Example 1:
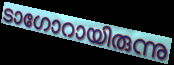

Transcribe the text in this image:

ടാഗോറായിരുന്നു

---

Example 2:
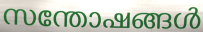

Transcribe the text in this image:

സന്തോഷങ്ങൾ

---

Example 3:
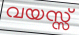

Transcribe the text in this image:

വയസ്സ്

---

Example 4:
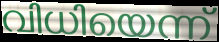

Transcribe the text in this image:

വിധിയെന്ന്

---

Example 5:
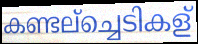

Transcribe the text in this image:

കണ്ടല്ച്ചെടികള്